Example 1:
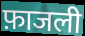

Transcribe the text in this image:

फ़ाजली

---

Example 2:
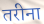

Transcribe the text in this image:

तरीना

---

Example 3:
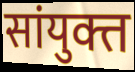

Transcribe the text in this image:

सांयुक्त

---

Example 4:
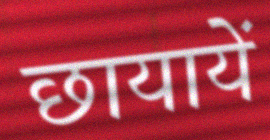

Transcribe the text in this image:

छायायें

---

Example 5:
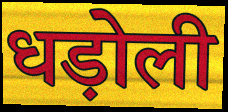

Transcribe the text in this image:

धड़ोली